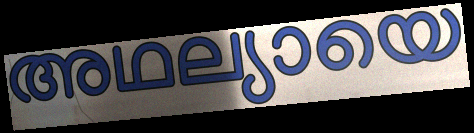
അഥല്യായെ